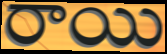
రాయి